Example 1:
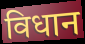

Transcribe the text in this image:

विधान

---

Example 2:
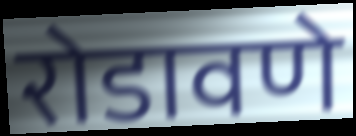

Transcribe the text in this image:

रोडावणे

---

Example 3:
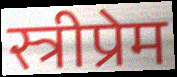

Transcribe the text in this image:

स्त्रीप्रेम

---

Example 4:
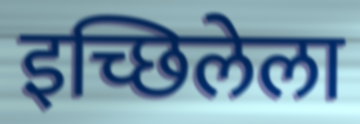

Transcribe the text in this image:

इच्छिलेला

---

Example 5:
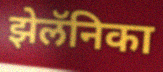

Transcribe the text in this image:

झेलॅनिका